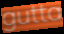
gutta